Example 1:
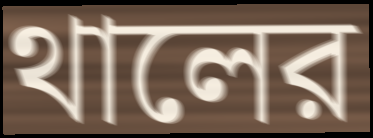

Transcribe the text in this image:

থালের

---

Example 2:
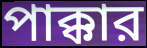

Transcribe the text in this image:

পাক্কার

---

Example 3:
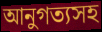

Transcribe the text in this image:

আনুগত্যসহ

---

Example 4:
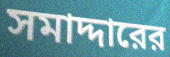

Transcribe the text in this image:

সমাদ্দারের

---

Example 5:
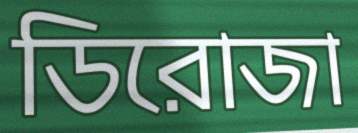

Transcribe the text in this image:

ডিরোজা